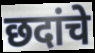
छदांचे